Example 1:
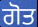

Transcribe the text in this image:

ਗੋਤ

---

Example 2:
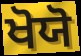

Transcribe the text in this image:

ਖੋਯੋ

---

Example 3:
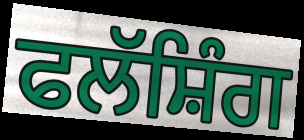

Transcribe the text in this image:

ਫਲੱਸ਼ਿੰਗ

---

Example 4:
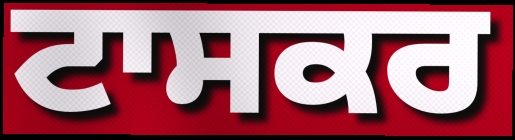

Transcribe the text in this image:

ਟਾਸਕਰ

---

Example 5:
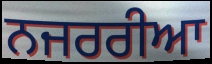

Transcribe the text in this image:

ਨਜਰਰੀਆ